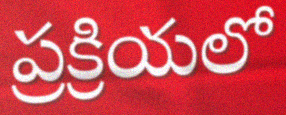
ప్రక్రియలో